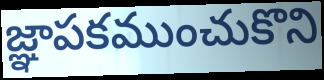
జ్ఞాపకముంచుకొని